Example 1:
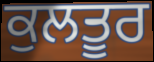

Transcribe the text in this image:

ਕੁਲਤੂਰ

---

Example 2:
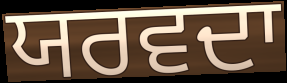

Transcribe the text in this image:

ਯਰਵਦਾ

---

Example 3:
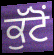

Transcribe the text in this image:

ਕੁੱਟੋਂ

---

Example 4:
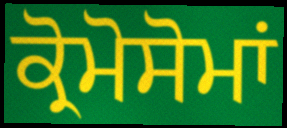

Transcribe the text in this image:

ਕ੍ਰੋਮੋਸੋਮਾਂ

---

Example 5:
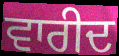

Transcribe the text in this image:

ਵਾਰੀਦ